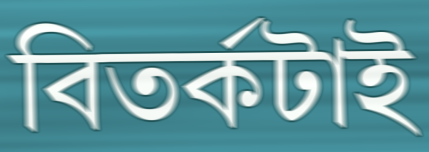
বিতর্কটাই